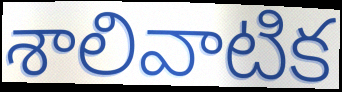
శాలివాటిక